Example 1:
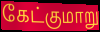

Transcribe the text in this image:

கேட்குமாறு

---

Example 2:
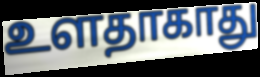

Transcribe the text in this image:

உளதாகாது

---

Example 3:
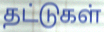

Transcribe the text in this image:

தட்டுகள்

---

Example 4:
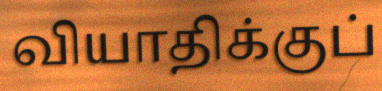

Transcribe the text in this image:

வியாதிக்குப்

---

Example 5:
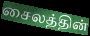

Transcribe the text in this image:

சைலத்தின்